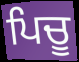
ਪਿਚੂ